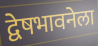
द्वेषभावनेला